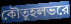
কৌতুহলভরে